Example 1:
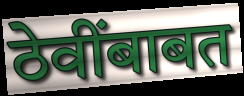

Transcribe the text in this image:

ठेवींबाबत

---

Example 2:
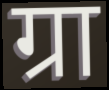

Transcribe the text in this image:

ग्रा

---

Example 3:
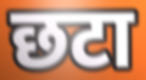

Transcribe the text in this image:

छटा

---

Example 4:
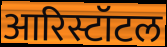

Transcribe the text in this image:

आरिस्टॉटल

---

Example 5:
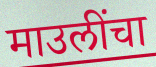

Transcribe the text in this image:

माउलींचा